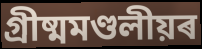
গ্ৰীষ্মমণ্ডলীয়ৰ